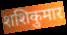
शशिकुमार